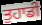
ਤੁਹਾਡੀ